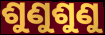
ଶୁଣୁଶୁଣୁ